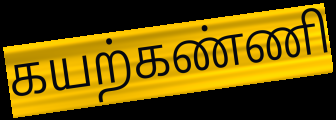
கயற்கண்ணி